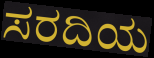
ಸರದಿಯ